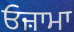
ਓਜ਼ਾਮਾ